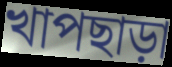
খাপছাড়া